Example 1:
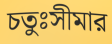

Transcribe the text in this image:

চতুঃসীমার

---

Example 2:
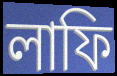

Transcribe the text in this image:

লাফি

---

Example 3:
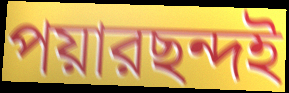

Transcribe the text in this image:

পয়ারছন্দই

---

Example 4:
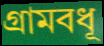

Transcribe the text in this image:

গ্রামবধূ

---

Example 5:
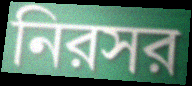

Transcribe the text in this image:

নিরসর